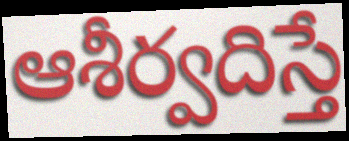
ఆశీర్వదిస్తే